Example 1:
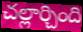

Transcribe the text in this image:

చల్లార్చింది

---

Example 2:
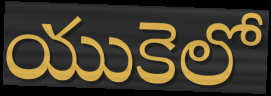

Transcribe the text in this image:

యుకెలో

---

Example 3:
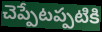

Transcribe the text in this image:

చెప్పేటప్పటికి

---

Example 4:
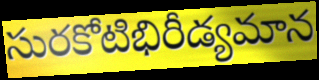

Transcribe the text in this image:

సురకోటిభిరీడ్యమాన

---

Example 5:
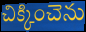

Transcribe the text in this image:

చిక్కించెను